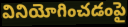
వినియోగించడంపై